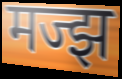
मज्झ